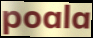
poala